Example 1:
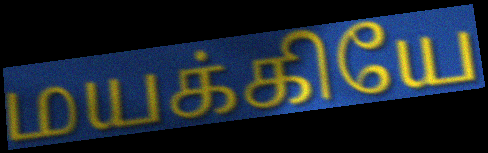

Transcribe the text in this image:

மயக்கியே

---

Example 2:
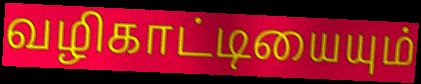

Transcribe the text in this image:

வழிகாட்டியையும்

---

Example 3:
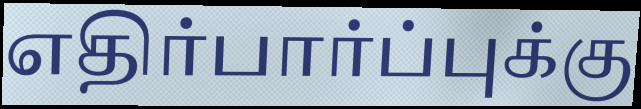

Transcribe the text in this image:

எதிர்பார்ப்புக்கு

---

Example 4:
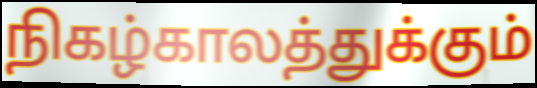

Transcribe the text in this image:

நிகழ்காலத்துக்கும்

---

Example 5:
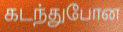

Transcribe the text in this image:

கடந்துபோன